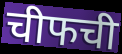
चीफची